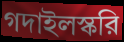
গদাইলস্করি